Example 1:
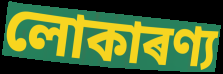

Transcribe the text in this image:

লোকাৰণ্য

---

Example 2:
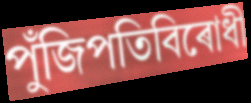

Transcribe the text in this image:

পুঁজিপতিবিৰোধী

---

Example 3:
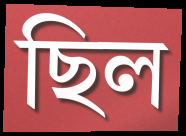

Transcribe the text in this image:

ছিল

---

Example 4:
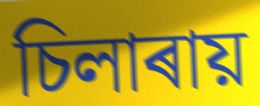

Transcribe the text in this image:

চিলাৰায়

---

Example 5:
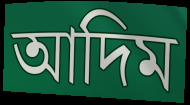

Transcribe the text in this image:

আদিম